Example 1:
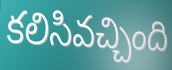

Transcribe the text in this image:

కలిసివచ్చింది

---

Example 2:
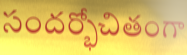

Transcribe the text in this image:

సందర్భోచితంగా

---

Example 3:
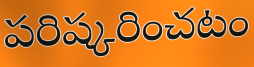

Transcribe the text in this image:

పరిష్కరించటం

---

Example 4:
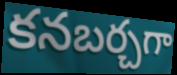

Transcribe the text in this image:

కనబర్చగా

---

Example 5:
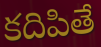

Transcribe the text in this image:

కదిపితే